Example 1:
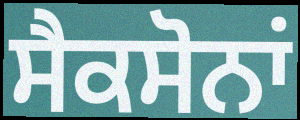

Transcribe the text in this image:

ਸੈਕਸੋਨਾਂ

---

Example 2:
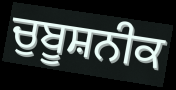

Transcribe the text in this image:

ਚੁਬੂਸ਼ਨੀਕ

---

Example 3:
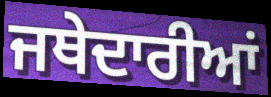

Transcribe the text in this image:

ਜਥੇਦਾਰੀਆਂ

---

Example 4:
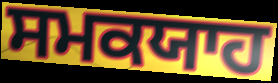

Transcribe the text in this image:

ਸਮਕਯਾਹ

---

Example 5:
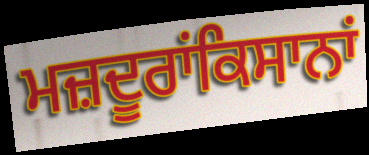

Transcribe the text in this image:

ਮਜ਼ਦੂਰਾਂਕਿਸਾਨਾਂ